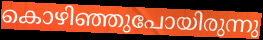
കൊഴിഞ്ഞുപോയിരുന്നു